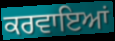
ਕਰਵਾਇਆਂ